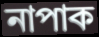
নাপাক